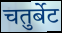
चतुर्बेट